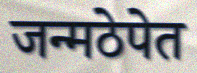
जन्मठेपेत